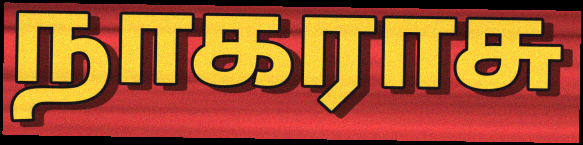
நாகராசு